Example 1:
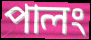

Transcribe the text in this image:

পালং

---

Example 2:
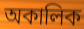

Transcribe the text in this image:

অকালিক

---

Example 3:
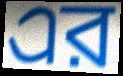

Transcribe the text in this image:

এর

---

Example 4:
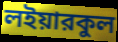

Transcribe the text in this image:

লইয়ারকুল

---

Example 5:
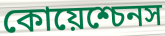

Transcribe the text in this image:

কোয়েশ্চেনস